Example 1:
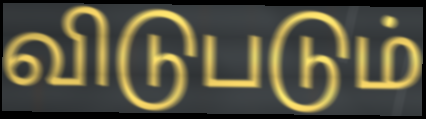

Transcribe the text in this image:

விடுபடும்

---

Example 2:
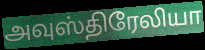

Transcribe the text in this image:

அவுஸ்திரேலியா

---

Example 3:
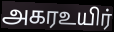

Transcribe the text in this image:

அகரஉயிர்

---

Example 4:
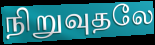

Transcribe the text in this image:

நிறுவுதலே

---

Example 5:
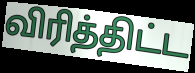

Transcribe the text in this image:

விரித்திட்ட